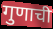
गुणाची